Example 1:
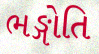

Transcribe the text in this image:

ભઙ્ગોતિ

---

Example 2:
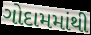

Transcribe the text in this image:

ગોદામમાંથી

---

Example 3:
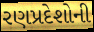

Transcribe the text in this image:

રણપ્રદેશોની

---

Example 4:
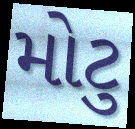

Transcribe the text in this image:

મોટુ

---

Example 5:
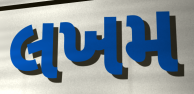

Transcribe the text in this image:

લખમ